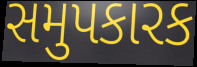
સમુપકારક